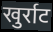
खुर्राट